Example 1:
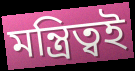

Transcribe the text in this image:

মন্ত্রিত্বই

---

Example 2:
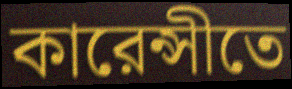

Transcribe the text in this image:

কারেন্সীতে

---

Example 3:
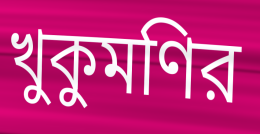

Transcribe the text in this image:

খুকুমণির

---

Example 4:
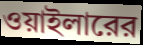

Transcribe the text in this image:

ওয়াইলারের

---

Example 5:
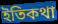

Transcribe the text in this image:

ইতিকথা